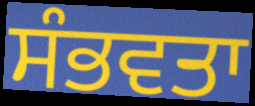
ਸੰਭਵਤਾ